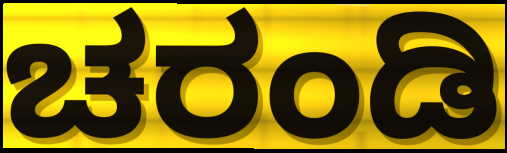
ಚರಂಡಿ